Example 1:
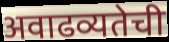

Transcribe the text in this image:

अवाढव्यतेची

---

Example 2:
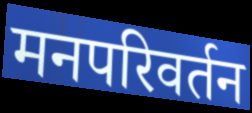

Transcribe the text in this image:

मनपरिवर्तन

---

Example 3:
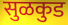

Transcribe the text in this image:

सुळकुड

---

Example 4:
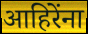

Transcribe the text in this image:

आहिरेंना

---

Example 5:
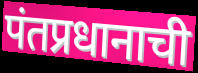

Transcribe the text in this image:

पंतप्रधानाची